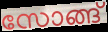
സോങ്ങ്